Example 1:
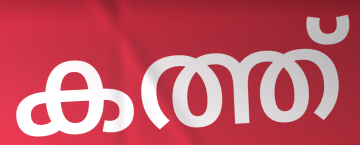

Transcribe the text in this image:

കത്ത്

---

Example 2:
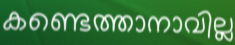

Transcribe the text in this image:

കണ്ടെത്താനാവില്ല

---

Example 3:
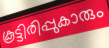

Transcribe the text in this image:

കൂട്ടിരിപ്പുകാരും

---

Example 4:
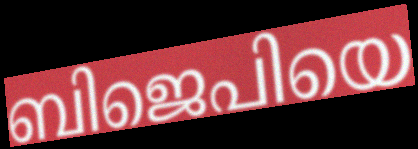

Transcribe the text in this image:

ബിജെപിയെ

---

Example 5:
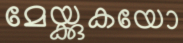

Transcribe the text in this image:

മേയ്ക്കുകയോ